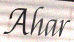
Ahar